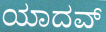
ಯಾದವ್